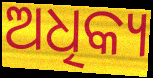
ଅଧିକ୍ୟ